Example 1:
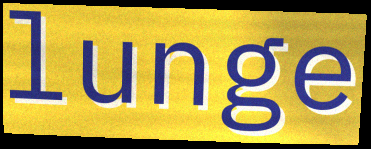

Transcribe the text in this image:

lunge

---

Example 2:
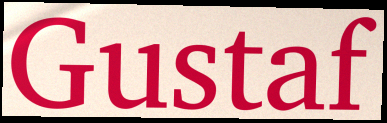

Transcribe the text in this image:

Gustaf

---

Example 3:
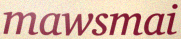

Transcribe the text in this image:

mawsmai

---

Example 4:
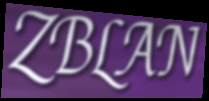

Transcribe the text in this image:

ZBLAN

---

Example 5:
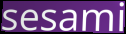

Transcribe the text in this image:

sesami